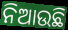
ନିଆଉଛି